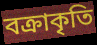
বক্রাকৃতি